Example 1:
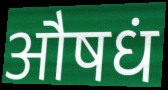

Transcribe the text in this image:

औषधं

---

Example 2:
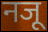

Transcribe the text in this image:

नजू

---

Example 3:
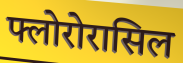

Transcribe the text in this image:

फ्लोरोरासिल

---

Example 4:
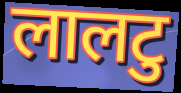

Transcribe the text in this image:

लालटु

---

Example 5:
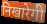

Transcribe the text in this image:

निखारेगी